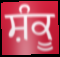
ਸ਼ੰਕੂ